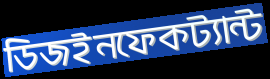
ডিজইনফেকট্যান্ট